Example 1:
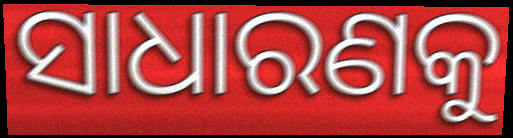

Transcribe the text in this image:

ସାଧାରଣକୁ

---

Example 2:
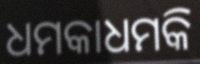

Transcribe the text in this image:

ଧମକାଧମକି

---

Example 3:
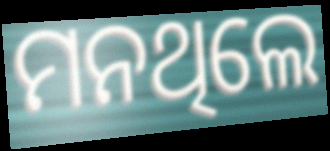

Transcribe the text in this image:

ମନଥିଲେ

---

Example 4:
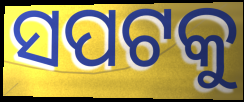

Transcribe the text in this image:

ସପଟକୁ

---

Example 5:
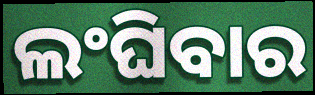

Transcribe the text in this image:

ଲଂଘିବାର